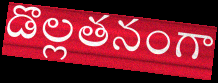
డొల్లతనంగా